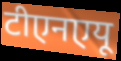
टीएनएयू